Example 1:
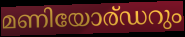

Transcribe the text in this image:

മണിയോര്ഡറും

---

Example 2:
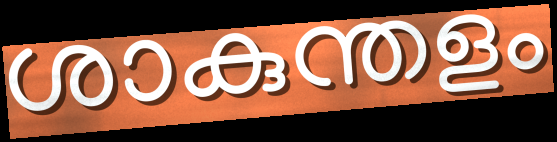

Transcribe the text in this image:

ശാകുന്തളം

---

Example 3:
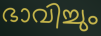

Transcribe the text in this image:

ഭാവിച്ചും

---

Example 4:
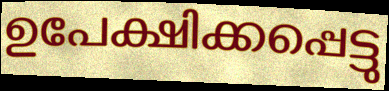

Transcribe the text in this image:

ഉപേക്ഷിക്കപ്പെട്ടു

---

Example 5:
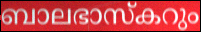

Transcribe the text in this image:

ബാലഭാസ്കറും